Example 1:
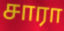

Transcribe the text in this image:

சாரா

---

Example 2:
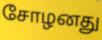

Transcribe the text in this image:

சோழனது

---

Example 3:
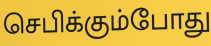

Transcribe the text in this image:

செபிக்கும்போது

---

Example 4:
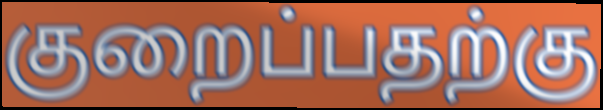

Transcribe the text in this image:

குறைப்பதற்கு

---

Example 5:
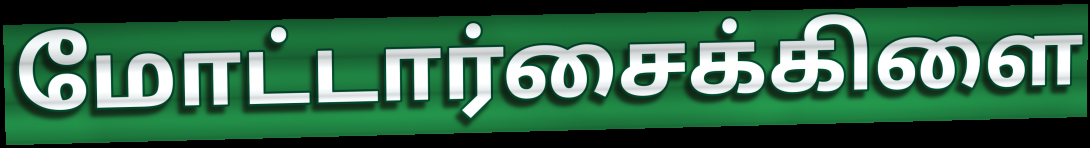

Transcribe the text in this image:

மோட்டார்சைக்கிளை